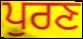
ਪੁਰਣ